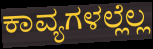
ಕಾವ್ಯಗಳಲ್ಲೆಲ್ಲ